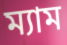
ম্যাম